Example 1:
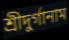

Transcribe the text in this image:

শ্রীদুর্গানাম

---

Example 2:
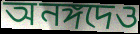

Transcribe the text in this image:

অনঙ্গদেও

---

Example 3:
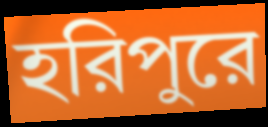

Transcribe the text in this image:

হরিপুরে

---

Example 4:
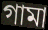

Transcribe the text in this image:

গামা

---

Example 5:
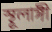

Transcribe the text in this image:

স্থূলাঙ্গী